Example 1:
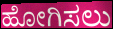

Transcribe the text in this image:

ಹೋಗಿಸಲು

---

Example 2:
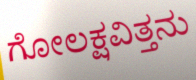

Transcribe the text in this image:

ಗೋಲಕ್ಷವಿತ್ತನು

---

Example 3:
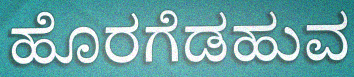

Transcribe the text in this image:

ಹೊರಗೆಡಹುವ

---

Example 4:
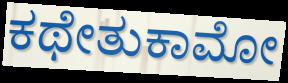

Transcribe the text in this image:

ಕಥೇತುಕಾಮೋ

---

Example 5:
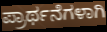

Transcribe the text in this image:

ಪ್ರಾರ್ಥನೆಗಳಾಗಿ